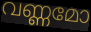
വണ്ണമോ